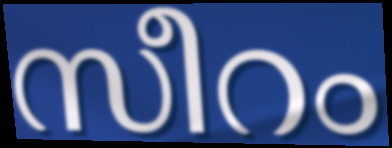
സീറം